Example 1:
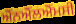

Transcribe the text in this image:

ਐੱਨਐੱਲਐੱਮਸੀ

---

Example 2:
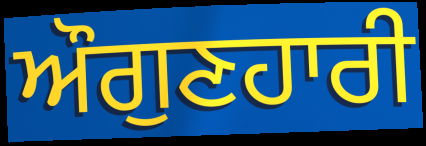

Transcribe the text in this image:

ਔਗੁਣਹਾਰੀ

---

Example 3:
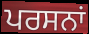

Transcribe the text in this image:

ਪਰਸਨਾਂ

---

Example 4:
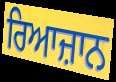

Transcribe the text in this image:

ਰਿਆਜ਼ਾਨ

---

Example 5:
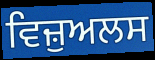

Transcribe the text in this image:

ਵਿਜ਼ੁਅਲਸ